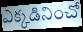
ఎక్కడినించో